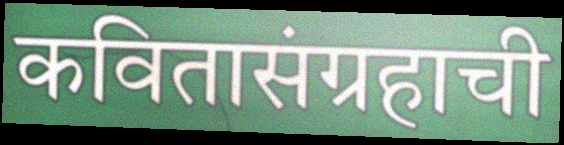
कवितासंग्रहाची